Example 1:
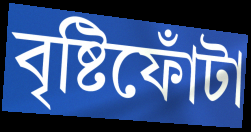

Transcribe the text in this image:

বৃষ্টিফোঁটা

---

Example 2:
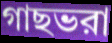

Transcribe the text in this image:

গাছভরা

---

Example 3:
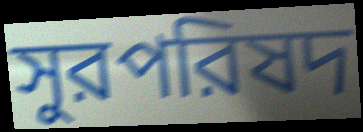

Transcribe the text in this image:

সুরপরিষদ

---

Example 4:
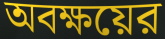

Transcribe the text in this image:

অবক্ষয়ের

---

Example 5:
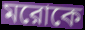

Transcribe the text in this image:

মরোকে